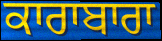
ਕਾਰਾਬਾਰਾ